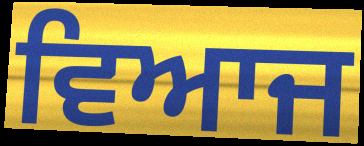
ਵਿਆਜ